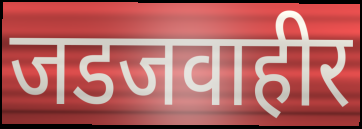
जडजवाहीर